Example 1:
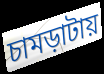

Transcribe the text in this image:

চামড়াটায়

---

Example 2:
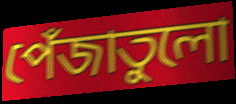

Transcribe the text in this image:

পেঁজাতুলো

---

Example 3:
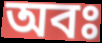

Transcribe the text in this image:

অবঃ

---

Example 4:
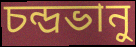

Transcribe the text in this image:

চন্দ্রভানু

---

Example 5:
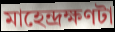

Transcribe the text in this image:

মাহেন্দ্রক্ষণটা